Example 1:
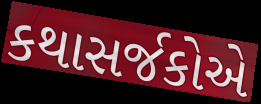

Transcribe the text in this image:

કથાસર્જકોએ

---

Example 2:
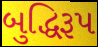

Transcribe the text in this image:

બુદ્ધિરૂપ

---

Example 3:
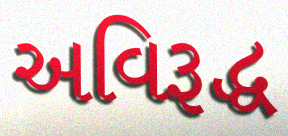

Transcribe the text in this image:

અવિરૂદ્ધ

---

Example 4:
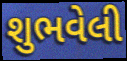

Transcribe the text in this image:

શુભવેલી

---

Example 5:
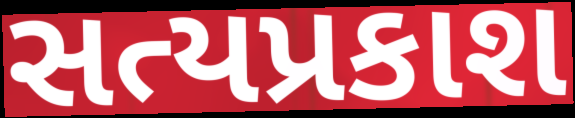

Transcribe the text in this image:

સત્યપ્રકાશ